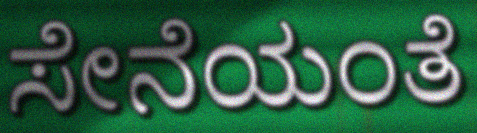
ಸೇನೆಯಂತೆ